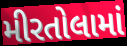
મીરતોલામાં